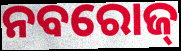
ନବରୋଜ୍